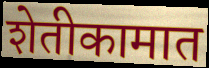
शेतीकामात